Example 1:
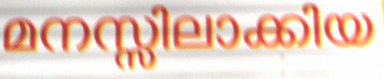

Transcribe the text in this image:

മനസ്സിലാക്കിയ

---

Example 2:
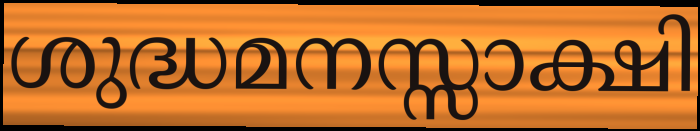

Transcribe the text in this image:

ശുദ്ധമനസ്സാക്ഷി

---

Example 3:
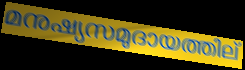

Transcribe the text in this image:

മനുഷ്യസമുദായത്തില്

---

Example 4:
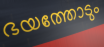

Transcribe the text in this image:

ഭയത്തോടും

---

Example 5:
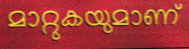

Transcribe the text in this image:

മാറ്റുകയുമാണ്